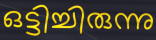
ഒട്ടിച്ചിരുന്നു